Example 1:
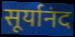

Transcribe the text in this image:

सूर्यानंद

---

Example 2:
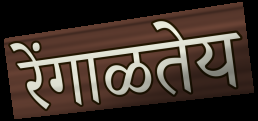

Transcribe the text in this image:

रेंगाळतेय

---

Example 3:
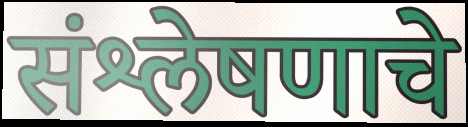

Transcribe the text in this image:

संश्लेषणाचे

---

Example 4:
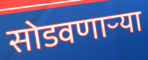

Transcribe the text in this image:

सोडवणाऱ्या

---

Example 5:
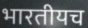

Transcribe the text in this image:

भारतीयच